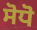
ਸੋਧੋ